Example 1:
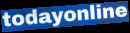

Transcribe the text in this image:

todayonline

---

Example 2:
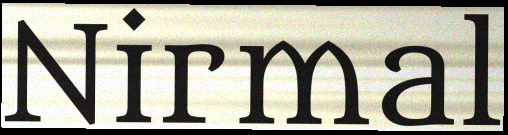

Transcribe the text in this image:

Nirmal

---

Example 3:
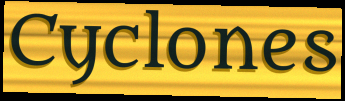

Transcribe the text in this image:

Cyclones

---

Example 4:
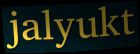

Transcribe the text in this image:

jalyukt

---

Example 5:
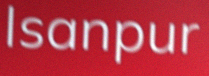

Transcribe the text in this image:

Isanpur